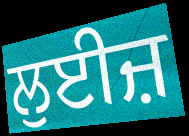
ਲੁਈਜ਼